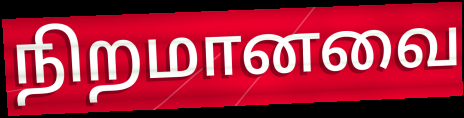
நிறமானவை